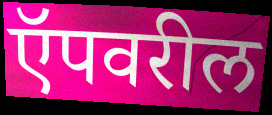
ऍपवरील